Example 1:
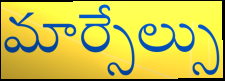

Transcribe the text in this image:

మార్సేల్సు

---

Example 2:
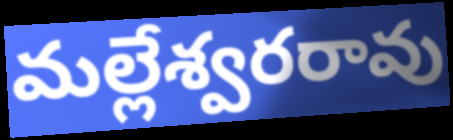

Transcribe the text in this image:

మల్లేశ్వరరావు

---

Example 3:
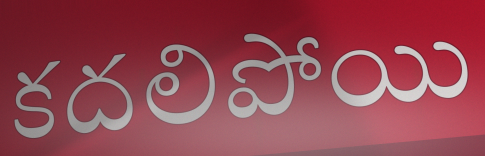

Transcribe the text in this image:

కదలిపోయి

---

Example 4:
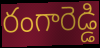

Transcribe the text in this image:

రంగారెడ్డి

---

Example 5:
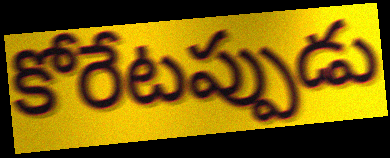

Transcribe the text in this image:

కోరేటప్పుడు